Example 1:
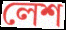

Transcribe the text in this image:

লেশ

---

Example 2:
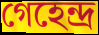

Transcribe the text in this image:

গেহেন্দ্র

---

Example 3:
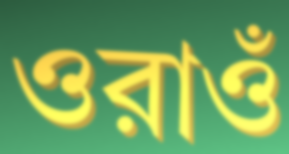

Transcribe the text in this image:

ওরাওঁ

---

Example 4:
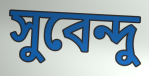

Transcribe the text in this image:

সুবেন্দু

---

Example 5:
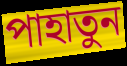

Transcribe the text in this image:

পাহাতুন